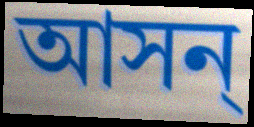
আসন্